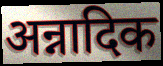
अन्नादिक